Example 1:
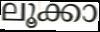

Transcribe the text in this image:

ലൂക്കാ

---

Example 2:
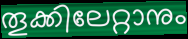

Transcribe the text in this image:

തൂക്കിലേറ്റാനും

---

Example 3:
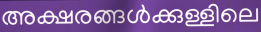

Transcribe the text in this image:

അക്ഷരങ്ങൾക്കുള്ളിലെ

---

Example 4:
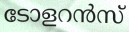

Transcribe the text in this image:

ടോളറൻസ്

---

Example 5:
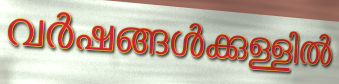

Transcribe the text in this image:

വർഷങ്ങൾക്കുള്ളിൽ